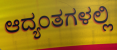
ಆದ್ಯಂತಗಳಲ್ಲಿ